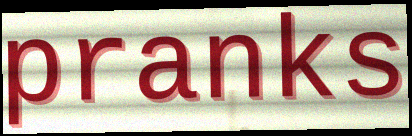
pranks